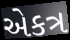
એકત્ર